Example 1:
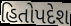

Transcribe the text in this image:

હિતોપદેશ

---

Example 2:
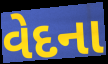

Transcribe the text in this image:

વેદના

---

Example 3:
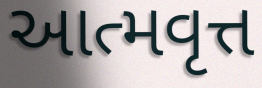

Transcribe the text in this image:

આત્મવૃત્ત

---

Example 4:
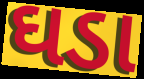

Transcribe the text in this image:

ઘડા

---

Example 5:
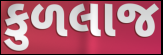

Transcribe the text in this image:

કુળલાજ